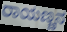
ರಾಯಣ್ಣನ